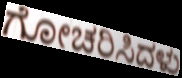
ಗೋಚರಿಸಿದಳು